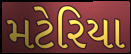
મટેરિયા